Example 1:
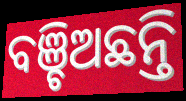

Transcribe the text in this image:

ବଞ୍ଚିଅଛନ୍ତି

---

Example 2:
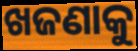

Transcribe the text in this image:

ଖଜଣାକୁ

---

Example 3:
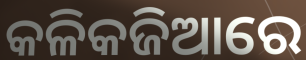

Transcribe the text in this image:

କଳିକଜିଆରେ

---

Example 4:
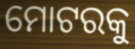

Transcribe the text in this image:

ମୋଟରକୁ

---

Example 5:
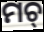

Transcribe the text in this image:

ମଚ୍